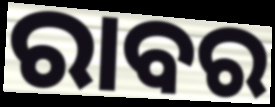
ରାବର